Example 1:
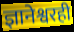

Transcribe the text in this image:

ज्ञानेश्वरही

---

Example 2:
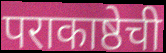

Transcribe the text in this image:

पराकाष्ठेची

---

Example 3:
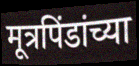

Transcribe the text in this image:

मूत्रपिंडांच्या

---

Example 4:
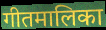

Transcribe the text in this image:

गीतमालिका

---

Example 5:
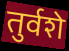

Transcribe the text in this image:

तुर्वशे